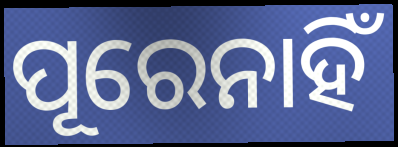
ପୂରେନାହିଁ